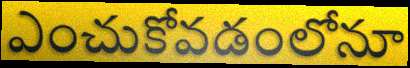
ఎంచుకోవడంలోనూ